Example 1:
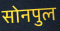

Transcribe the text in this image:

सोनपुल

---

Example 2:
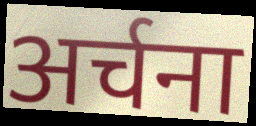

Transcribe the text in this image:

अर्चना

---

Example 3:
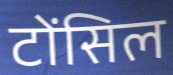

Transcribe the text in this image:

टोंसिल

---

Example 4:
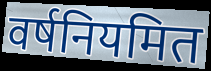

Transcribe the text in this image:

वर्षनियमित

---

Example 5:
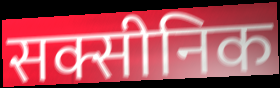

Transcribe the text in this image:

सक्सीनिक